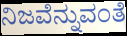
ನಿಜವೆನ್ನುವಂತೆ